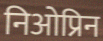
निओप्रिन